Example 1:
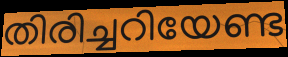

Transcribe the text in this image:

തിരിച്ചറിയേണ്ട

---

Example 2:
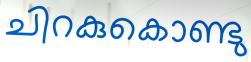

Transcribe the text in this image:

ചിറകുകൊണ്ടു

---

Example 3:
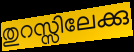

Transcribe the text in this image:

തുറസ്സിലേക്കു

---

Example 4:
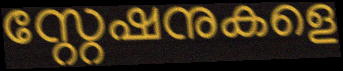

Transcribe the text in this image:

സ്റ്റേഷനുകളെ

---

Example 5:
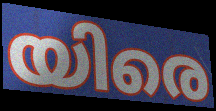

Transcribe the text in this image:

യിരെ